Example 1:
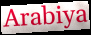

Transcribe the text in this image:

Arabiya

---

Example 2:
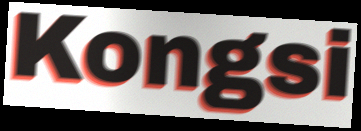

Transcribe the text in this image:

Kongsi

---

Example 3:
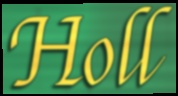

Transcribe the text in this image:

Holl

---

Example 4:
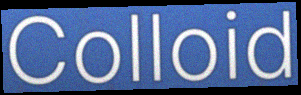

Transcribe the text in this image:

Colloid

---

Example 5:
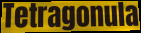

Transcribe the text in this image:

Tetragonula